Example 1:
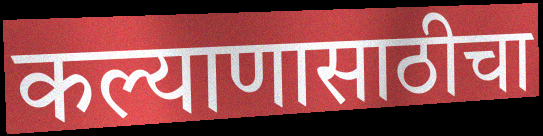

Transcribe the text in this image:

कल्याणासाठीचा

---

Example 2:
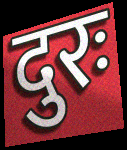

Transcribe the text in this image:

दुरः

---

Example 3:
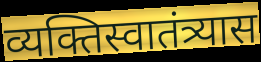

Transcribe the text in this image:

व्यक्तिस्वातंत्र्यास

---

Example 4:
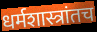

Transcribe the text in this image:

धर्मशास्त्रांतच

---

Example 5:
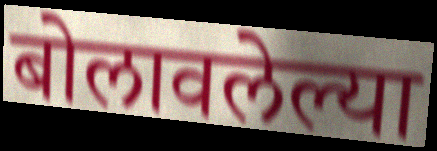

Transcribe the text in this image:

बोलावलेल्या